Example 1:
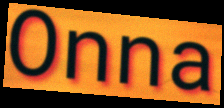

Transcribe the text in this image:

Onna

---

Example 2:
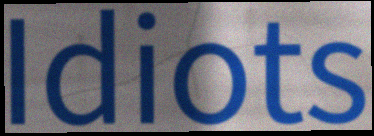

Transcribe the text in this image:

Idiots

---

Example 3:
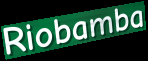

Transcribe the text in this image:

Riobamba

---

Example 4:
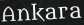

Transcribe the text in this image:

Ankara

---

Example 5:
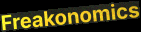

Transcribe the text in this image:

Freakonomics